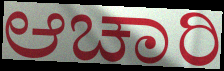
ಆಚಾರಿ